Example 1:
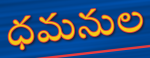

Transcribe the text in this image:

ధమనుల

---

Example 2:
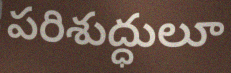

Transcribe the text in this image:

పరిశుద్ధులూ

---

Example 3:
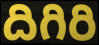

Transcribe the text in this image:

దిగిరి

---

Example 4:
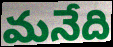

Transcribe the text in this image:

మనేది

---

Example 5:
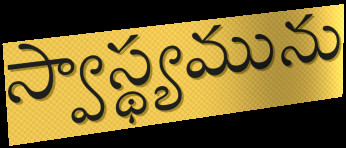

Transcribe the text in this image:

స్వాస్థ్యమును